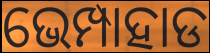
ଭେମ୍ପାହାଡ